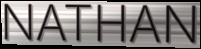
NATHAN